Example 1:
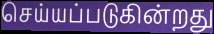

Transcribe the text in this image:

செய்யப்படுகின்றது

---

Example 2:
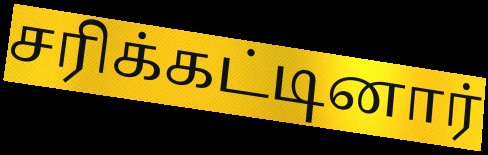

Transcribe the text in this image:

சரிக்கட்டினார்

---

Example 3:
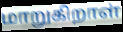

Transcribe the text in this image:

மாறுகிறாள்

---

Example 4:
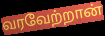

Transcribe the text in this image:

வரவேற்றான்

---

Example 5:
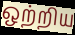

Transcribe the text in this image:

ஒற்றிய